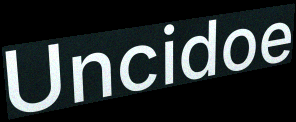
Uncidoe